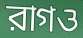
রাগও